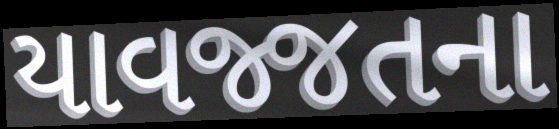
યાવજ્જતના